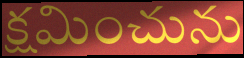
క్షమించును